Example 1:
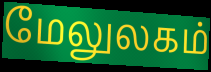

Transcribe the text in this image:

மேலுலகம்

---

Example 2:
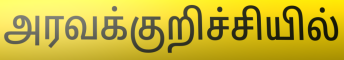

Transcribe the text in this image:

அரவக்குறிச்சியில்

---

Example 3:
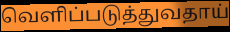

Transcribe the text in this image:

வெளிப்படுத்துவதாய்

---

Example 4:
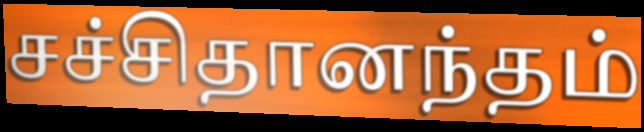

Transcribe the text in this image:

சச்சிதானந்தம்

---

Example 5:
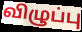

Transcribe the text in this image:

விழுப்பு